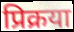
प्रिक्रया